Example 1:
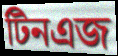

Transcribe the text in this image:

টিনএজ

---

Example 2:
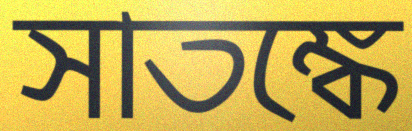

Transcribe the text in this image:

সাতঙ্কে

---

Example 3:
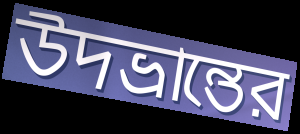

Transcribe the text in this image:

উদভ্রান্তের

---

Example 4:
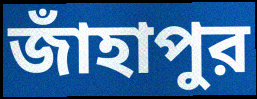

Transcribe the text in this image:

জাঁহাপুর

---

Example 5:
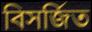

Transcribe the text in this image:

বিসর্জিত